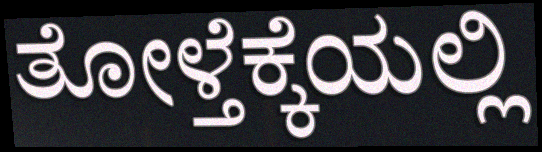
ತೋಳ್ತೆಕ್ಕೆಯಲ್ಲಿ